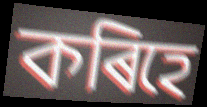
কৰিহে